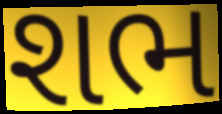
શભ